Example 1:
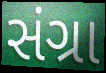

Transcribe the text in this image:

સંગ્રા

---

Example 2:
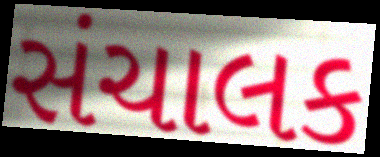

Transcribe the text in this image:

સંચાલક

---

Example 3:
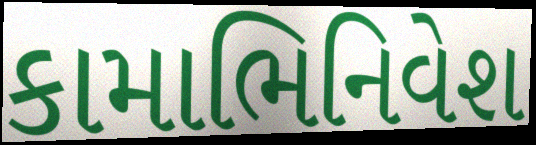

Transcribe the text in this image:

કામાભિનિવેશ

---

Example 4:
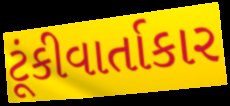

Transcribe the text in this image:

ટૂંકીવાર્તાકાર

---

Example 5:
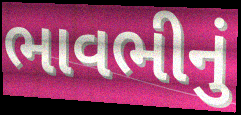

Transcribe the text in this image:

ભાવભીનું